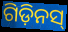
ଗିଡ଼ିନସ୍